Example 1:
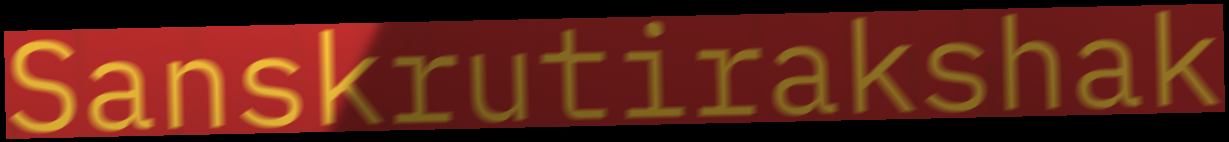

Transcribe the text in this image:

Sanskrutirakshak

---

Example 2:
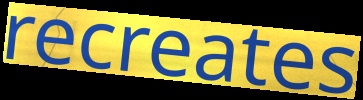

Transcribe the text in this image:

recreates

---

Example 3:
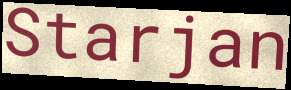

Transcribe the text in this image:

Starjan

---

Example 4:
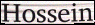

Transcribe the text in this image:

Hossein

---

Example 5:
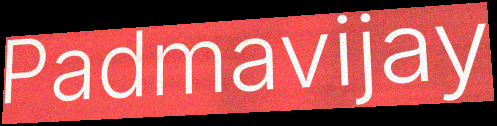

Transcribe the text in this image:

Padmavijay